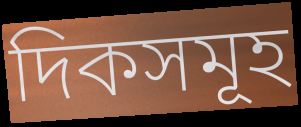
দিকসমূহ